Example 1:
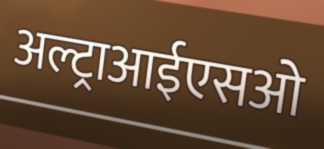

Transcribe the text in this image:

अल्ट्राआईएसओ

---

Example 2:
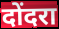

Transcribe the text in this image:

दोंदरा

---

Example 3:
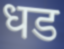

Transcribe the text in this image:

धड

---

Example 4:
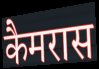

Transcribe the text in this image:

कैमरास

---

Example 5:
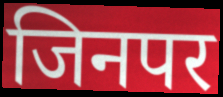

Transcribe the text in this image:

जिनपर